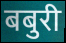
बबुरी